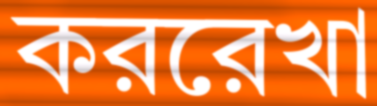
কররেখা